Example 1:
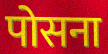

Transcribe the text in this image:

पोसना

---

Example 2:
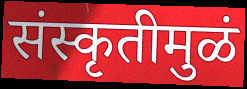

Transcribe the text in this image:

संस्कृतीमुळं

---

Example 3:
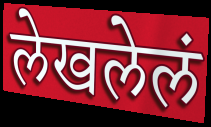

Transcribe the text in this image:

लेखलेलं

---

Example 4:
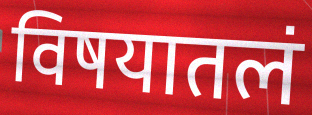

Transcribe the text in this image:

विषयातलं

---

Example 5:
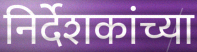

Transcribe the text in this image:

निर्देशकांच्या